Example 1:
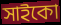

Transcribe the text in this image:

সাইকো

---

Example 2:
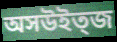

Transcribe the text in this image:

অসউইত্জ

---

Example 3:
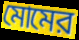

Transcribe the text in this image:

মোমের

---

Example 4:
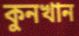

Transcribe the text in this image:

কুনখান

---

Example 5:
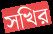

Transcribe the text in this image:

সখির